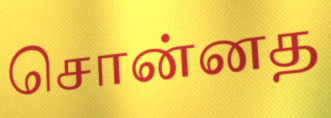
சொன்னத